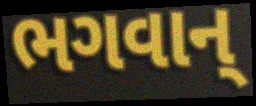
ભગવાન્